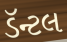
ડૅન્ટલ